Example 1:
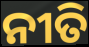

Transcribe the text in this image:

ନୀତି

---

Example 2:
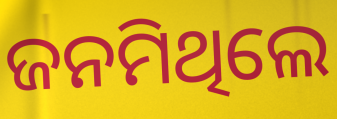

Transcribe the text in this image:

ଜନମିଥିଲେ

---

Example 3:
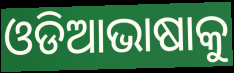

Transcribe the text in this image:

ଓଡିଆଭାଷାକୁ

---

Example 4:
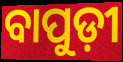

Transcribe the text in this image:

ବାପୁଡ଼ୀ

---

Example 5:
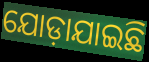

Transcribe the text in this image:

ଯୋଡ଼ାଯାଇଛି